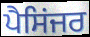
ਪੈਸਿਂਜਰ